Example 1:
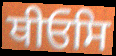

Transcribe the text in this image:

ਥੀਓਸਿ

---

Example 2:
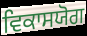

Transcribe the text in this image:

ਵਿਕਾਸਯੋਗ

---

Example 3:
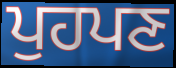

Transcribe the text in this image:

ਪੁਹਪਣ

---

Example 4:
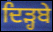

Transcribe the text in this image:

ਦਿੜ੍ਹਬੇ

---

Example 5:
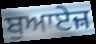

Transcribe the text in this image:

ਬੁਆਏਜ਼